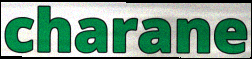
charane